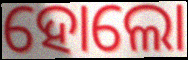
ହୋଲୋ